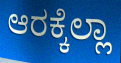
ಆರಕ್ಕೆಲ್ಲಾ